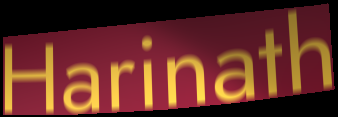
Harinath